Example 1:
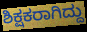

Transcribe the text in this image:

ಶಿಕ್ಷಕರಾಗಿದ್ದು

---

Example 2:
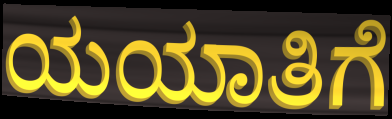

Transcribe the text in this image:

ಯಯಾತಿಗೆ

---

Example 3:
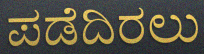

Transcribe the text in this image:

ಪಡೆದಿರಲು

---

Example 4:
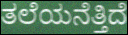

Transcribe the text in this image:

ತಲೆಯನೆತ್ತಿದೆ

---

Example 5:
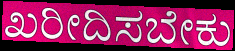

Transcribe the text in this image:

ಖರೀದಿಸಬೇಕು